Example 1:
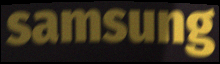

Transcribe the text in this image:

samsung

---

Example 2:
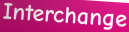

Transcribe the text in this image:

Interchange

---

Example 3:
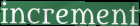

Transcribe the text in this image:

increment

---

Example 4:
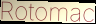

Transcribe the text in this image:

Rotomac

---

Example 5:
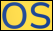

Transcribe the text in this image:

OS